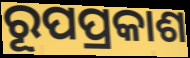
ରୂପପ୍ରକାଶ